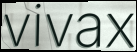
vivax